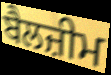
ਬੈਲਜ਼ੀਮ